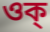
ওক্